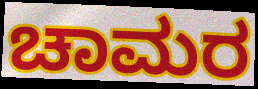
ಚಾಮರ